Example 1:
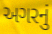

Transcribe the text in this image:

અગરનું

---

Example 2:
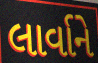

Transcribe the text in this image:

લાર્વાને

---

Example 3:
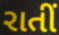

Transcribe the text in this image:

રાતીં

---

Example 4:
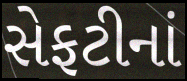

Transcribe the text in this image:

સેફટીનાં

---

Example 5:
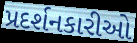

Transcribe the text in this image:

પ્રદર્શનકારીઓ